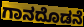
ಗಾನದೊಡನೆ